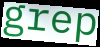
grep